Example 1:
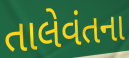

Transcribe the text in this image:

તાલેવંતના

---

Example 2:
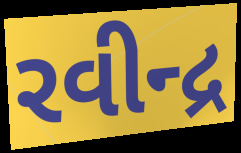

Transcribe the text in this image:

રવીન્દ્ર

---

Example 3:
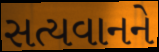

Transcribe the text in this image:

સત્યવાનને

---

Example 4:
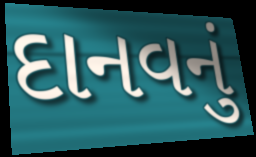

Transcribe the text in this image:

દાનવનું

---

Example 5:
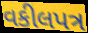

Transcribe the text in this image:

વકીલપત્ર